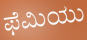
ಫೆಮಿಯು